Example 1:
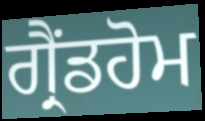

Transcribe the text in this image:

ਗ੍ਰੈਂਡਹੋਮ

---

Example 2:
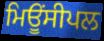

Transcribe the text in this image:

ਮਿਊਂਸੀਪਲ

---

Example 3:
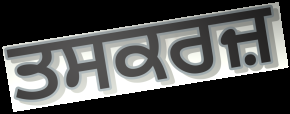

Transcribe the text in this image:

ਤਸਕਰਜ਼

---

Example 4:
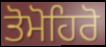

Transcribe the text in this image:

ਤੋਮੋਹਿਰੋ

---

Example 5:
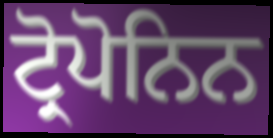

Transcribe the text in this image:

ਟ੍ਰੋਪੋਨਿਨ